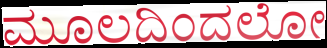
ಮೂಲದಿಂದಲೋ